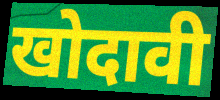
खोदावी